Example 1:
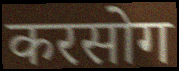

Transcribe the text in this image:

करसोग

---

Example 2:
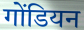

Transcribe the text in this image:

गोंडियन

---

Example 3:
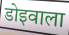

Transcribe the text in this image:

डोइवाला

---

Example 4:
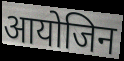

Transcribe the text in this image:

आयोजिन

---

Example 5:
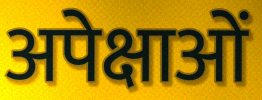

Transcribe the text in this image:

अपेक्षाओं